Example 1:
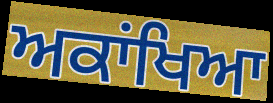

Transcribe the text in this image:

ਅਕਾਂਖਿਆ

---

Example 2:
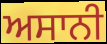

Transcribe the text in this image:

ਅਸਾਨੀ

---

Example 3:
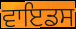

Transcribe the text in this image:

ਵਾਇਡਸ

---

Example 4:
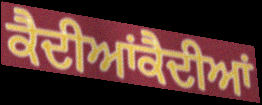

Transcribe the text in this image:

ਕੈਦੀਆਂਕੈਦੀਆਂ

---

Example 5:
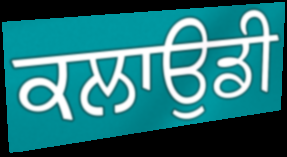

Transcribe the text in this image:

ਕਲਾਉਡੀ